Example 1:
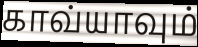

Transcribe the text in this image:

காவ்யாவும்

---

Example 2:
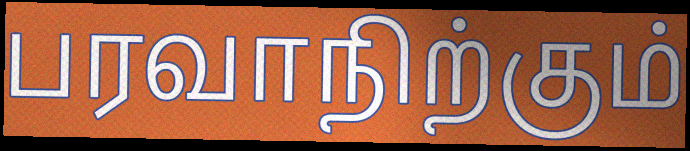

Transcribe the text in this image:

பரவாநிற்கும்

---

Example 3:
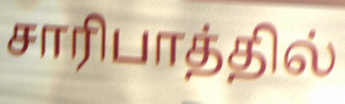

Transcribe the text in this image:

சாரிபாத்தில்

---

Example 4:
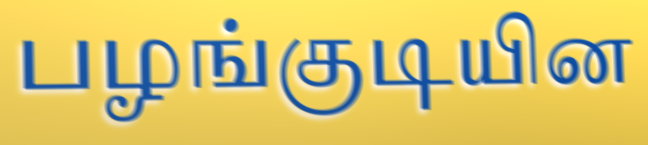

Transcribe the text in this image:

பழங்குடியின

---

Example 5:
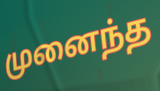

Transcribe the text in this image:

முனைந்த